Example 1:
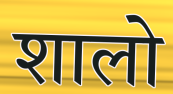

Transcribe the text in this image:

शालो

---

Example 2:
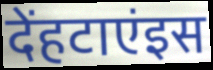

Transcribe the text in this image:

देंहटाएंइस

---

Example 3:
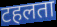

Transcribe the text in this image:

टहलता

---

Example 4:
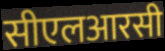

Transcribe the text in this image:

सीएलआरसी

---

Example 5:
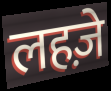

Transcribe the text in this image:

लहज़े